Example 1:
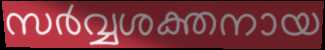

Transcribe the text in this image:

സർവ്വശക്തനായ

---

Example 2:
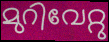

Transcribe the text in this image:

മുറിവേറ്റു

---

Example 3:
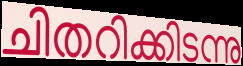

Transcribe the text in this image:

ചിതറിക്കിടന്നു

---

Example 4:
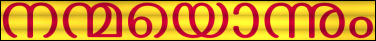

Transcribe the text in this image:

നന്മയൊന്നും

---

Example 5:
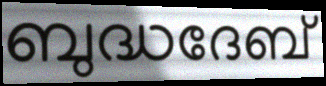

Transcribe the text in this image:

ബുദ്ധദേബ്